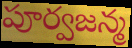
పూర్వజన్మ